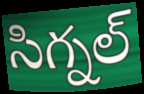
సిగ్నల్